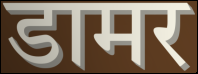
डामर